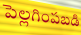
పెల్లగింపబడి